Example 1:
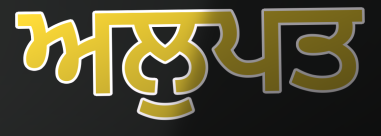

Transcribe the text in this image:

ਅਲੁਪਤ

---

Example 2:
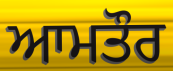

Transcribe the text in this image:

ਆਮਤੌਰ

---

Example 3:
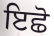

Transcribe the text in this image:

ਇਛੋ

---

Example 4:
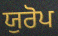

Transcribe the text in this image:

ਯੁਰੋਪ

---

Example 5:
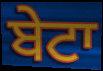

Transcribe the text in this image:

ਬੇਟਾ